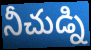
నీచుడ్ని